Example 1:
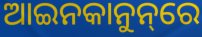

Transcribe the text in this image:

ଆଇନକାନୁନ୍‌ରେ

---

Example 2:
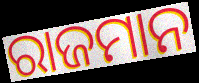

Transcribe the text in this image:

ରାଜମାନ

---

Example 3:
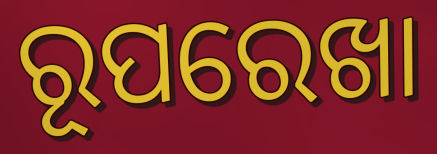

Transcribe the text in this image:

ରୂପରେଖା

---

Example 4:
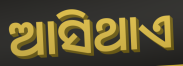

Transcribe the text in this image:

ଆସିଥାଏ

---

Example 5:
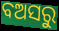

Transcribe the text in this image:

ବଅସରୁ